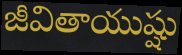
జీవితాయుష్షు